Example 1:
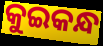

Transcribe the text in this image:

କୁଇକନ୍ଧ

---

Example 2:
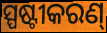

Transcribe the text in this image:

ସ୍ପଷ୍ଟୀକରଣ୍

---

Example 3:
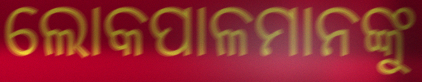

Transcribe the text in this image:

ଲୋକପାଳମାନଙ୍କୁ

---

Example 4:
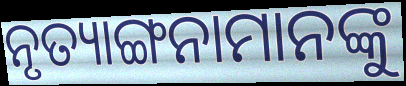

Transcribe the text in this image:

ନୃତ୍ୟାଙ୍ଗନାମାନଙ୍କୁ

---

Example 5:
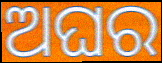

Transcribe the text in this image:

ଅଘର